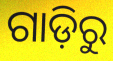
ଗାଡ଼ିରୁ